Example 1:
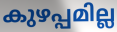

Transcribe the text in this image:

കുഴപ്പമില്ല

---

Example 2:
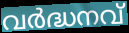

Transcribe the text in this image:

വർദ്ധനവ്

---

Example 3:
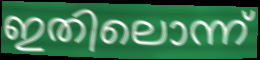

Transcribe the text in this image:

ഇതിലൊന്ന്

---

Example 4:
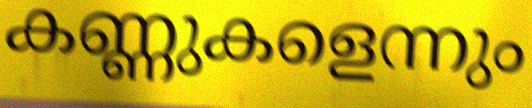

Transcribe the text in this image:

കണ്ണുകളെന്നും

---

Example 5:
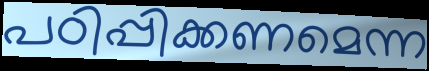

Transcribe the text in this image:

പഠിപ്പിക്കണമെന്ന